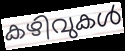
കഴിവുകൾ